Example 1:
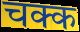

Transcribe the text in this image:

चक्‍क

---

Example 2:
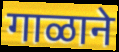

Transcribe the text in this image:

गाळाने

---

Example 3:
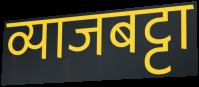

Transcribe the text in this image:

व्याजबट्टा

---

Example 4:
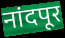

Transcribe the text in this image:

नांदपूर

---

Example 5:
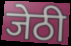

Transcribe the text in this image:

जेठी